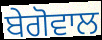
ਬੇਗੋਵਾਲ